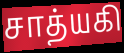
சாத்யகி